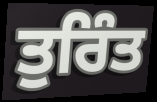
ਤੁਰਿੰਤ